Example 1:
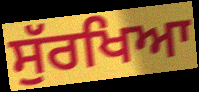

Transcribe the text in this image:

ਸੁੱਰਖਿਆ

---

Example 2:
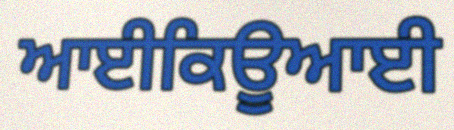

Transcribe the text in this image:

ਆਈਕਿਊਆਈ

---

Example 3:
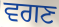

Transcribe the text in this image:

ਵਗਣ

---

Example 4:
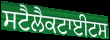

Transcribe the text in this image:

ਸਟੈਲੈਕਟਾਈਟਸ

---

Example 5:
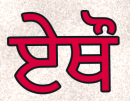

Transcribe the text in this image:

ਏਥੌ